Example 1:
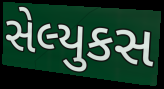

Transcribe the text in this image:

સેલ્યુકસ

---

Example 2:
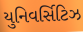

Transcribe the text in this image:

યુનિવર્સિટિઝ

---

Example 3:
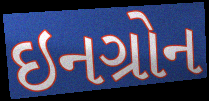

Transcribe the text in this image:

ઇનગ્રોન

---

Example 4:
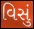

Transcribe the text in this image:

વિસું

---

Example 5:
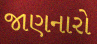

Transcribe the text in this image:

જાણનારો